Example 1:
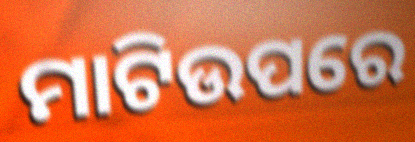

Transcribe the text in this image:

ମାଟିଉପରେ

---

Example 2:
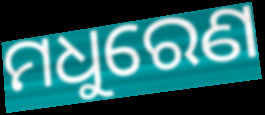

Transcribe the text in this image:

ମଧୁରେଣ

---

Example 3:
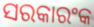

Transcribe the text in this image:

ସରକାରଂକ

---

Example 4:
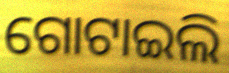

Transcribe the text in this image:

ଗୋଟାଇଲି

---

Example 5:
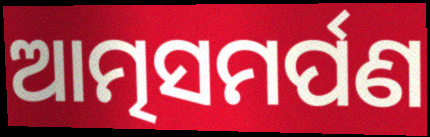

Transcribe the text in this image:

ଆତ୍ମସମର୍ପଣ